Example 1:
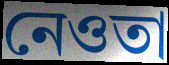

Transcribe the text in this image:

নেওতা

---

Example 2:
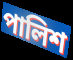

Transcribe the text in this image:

পালিশ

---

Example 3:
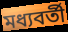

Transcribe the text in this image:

মধ্যবৰ্তী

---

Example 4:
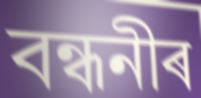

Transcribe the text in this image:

বন্ধনীৰ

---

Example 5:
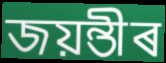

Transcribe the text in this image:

জয়ন্তীৰ